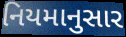
નિયમાનુસાર